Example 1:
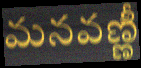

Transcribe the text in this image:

మనవణ్ణీ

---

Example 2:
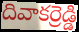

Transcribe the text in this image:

దివాకర్రెడ్డి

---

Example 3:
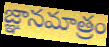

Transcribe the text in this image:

జ్ఞానమాత్రం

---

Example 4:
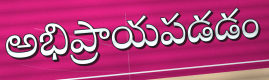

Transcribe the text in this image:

అభిప్రాయపడడం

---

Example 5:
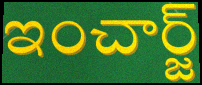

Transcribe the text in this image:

ఇంచార్జ్